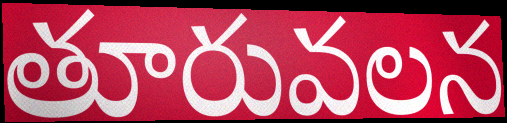
తూరువలన